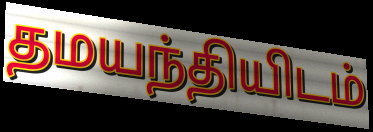
தமயந்தியிடம்